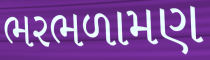
ભરભળામણ